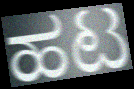
ಹಟ